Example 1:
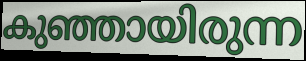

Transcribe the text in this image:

കുഞ്ഞായിരുന്ന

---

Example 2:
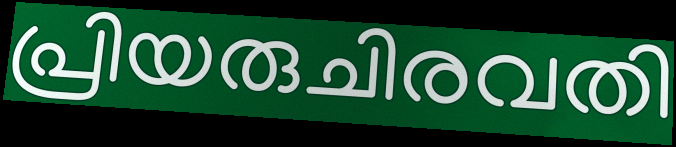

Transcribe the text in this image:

പ്രിയരുചിരവതി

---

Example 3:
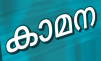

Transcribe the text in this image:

കാമന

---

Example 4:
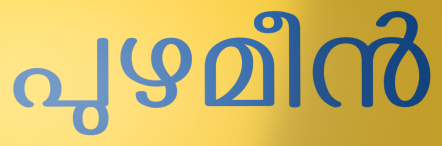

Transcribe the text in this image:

പുഴമീൻ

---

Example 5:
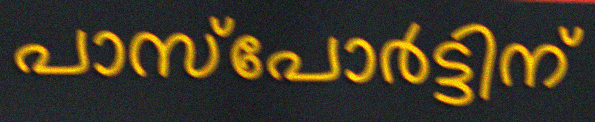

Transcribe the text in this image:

പാസ്പോർട്ടിന്